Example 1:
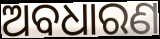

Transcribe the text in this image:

ଅବଧାରଣ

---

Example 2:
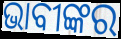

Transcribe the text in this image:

ଭାବୀଙ୍କର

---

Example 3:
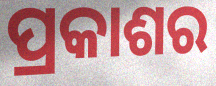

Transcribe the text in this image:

ପ୍ରକାଶର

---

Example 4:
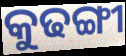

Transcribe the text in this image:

କୁଢଙ୍ଗୀ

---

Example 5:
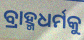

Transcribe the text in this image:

ବ୍ରାହ୍ମଧର୍ମକୁ